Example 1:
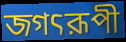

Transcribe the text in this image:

জগৎরূপী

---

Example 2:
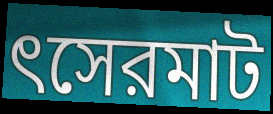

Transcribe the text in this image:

ৎসেরমাট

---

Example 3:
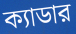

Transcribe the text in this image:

ক্যাডার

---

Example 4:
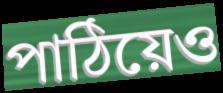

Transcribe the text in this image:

পাঠিয়েও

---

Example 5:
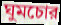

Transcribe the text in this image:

ঘুমচোর